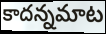
కాదన్నమాట